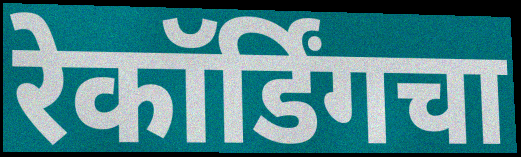
रेकॉर्डिंगचा